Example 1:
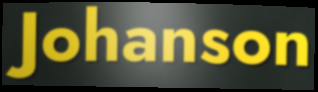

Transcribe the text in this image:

Johanson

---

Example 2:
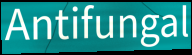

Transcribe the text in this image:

Antifungal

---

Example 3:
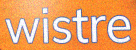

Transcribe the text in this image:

wistre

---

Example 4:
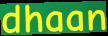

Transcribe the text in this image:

dhaan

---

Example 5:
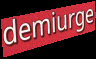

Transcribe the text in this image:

demiurge